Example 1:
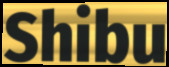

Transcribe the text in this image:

Shibu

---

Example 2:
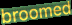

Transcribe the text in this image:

broomed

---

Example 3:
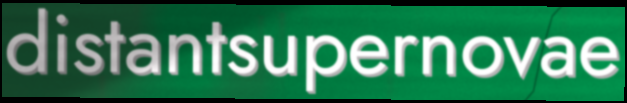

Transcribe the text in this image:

distantsupernovae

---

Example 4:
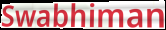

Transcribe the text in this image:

Swabhiman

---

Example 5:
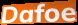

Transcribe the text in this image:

Dafoe